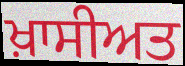
ਖ਼ਾਸੀਅਤ